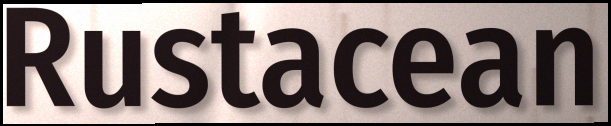
Rustacean